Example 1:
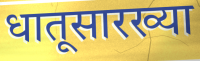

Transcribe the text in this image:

धातूसारख्या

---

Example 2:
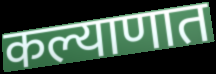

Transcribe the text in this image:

कल्याणात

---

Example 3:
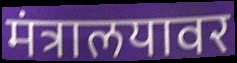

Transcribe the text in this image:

मंत्रालयावर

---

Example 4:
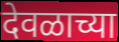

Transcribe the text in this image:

देवळाच्या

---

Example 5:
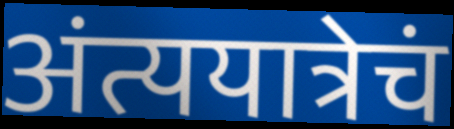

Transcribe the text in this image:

अंत्ययात्रेचं